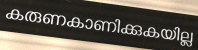
കരുണകാണിക്കുകയില്ല